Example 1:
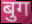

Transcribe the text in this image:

बुग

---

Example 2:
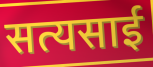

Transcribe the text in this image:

सत्यसाई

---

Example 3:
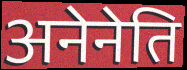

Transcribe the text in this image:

अनेनेति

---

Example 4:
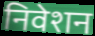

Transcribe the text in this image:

निवेशन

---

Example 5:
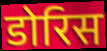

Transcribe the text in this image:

डोरिस